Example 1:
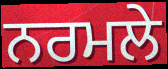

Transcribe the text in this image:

ਨਰਮਲੇ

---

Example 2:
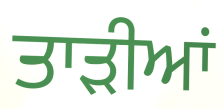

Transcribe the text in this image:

ਤਾੜੀਆਂ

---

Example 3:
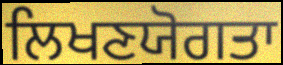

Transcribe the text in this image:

ਲਿਖਣਯੋਗਤਾ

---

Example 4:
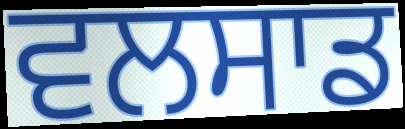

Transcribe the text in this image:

ਵਲਸਾਡ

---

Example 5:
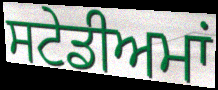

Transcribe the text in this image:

ਸਟੇਡੀਅਮਾਂ